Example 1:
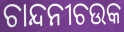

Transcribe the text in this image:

ଚାନ୍ଦନୀଚଉକ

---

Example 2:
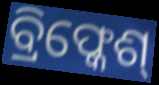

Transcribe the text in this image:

ବ୍ରିଫ୍କେଶ୍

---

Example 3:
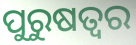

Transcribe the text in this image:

ପୁରୁଷତ୍ଵର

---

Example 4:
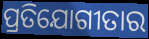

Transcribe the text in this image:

ପ୍ରତିଯୋଗୀତାର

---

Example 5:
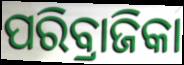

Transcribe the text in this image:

ପରିବ୍ରାଜିକା